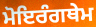
ਮੋਇਰੰਗਥੇਮ